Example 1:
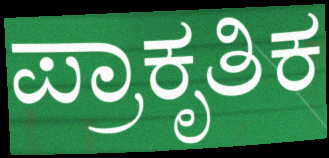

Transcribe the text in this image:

ಪ್ರಾಕೃತಿಕ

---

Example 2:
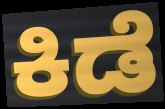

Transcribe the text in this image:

ಕಿಡೆ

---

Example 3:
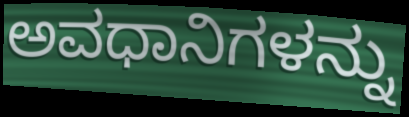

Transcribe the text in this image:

ಅವಧಾನಿಗಳನ್ನು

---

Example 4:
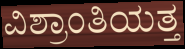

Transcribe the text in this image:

ವಿಶ್ರಾಂತಿಯತ್ತ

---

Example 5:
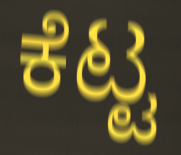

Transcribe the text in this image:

ಕೆಟ್ಟ